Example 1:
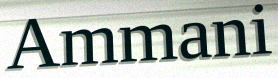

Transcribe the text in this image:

Ammani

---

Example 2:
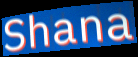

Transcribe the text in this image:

Shana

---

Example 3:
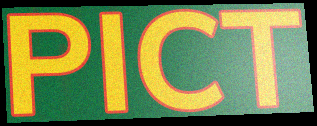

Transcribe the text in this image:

PICT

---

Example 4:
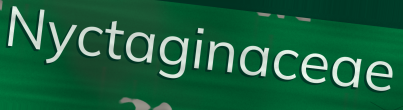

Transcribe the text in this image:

Nyctaginaceae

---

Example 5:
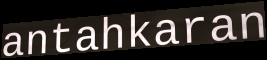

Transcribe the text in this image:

antahkaran